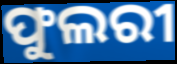
ଫୁଲରୀ